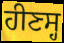
ਹੀਣਸ੍ਹ